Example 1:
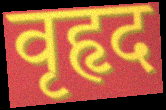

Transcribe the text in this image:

वृहृद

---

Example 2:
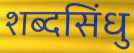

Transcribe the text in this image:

शब्दसिंधु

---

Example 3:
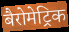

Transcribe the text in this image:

बैरोमेट्रिक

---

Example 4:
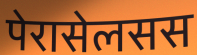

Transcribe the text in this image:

पेरासेलसस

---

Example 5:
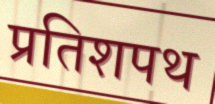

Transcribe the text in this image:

प्रतिशपथ